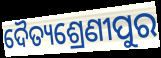
ଦୈତ୍ୟଶ୍ରେଣୀପୁର